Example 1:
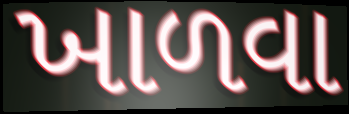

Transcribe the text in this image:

ખાળવા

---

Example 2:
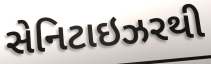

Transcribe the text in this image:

સેનિટાઇઝરથી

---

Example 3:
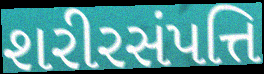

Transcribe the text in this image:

શરીરસંપત્તિ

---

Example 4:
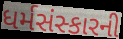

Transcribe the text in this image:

ધર્મસંસ્કારની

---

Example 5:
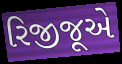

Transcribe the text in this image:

રિજીજૂએ